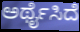
ಅರ್ಥೈಸಿದೆ